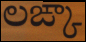
లఙ్కా